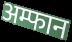
अम्‍फान